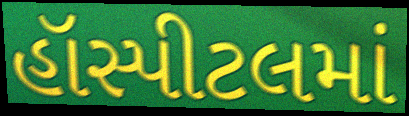
હૉસ્પીટલમાં